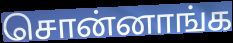
சொன்னாங்க